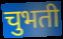
चुभती